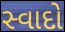
સ્વાદો